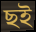
ছই